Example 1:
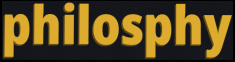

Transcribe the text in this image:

philosphy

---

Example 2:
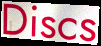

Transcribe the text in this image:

Discs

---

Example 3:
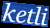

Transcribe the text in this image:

ketli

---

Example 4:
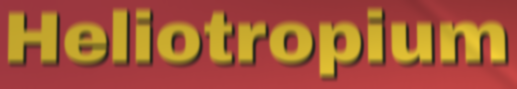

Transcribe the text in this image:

Heliotropium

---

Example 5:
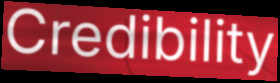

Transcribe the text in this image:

Credibility